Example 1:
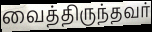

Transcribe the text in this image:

வைத்திருந்தவர்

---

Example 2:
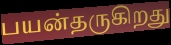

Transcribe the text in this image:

பயன்தருகிறது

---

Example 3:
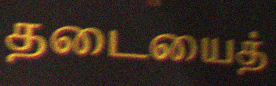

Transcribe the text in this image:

தடையைத்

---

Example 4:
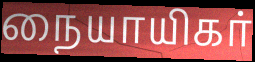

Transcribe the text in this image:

நையாயிகர்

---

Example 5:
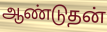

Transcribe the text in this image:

ஆண்டுதன்